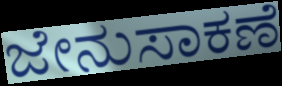
ಜೇನುಸಾಕಣೆ